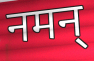
नमन्